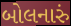
બોલનારું